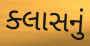
ક્લાસનું